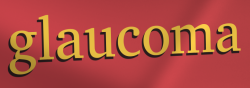
glaucoma